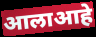
आलाआहे